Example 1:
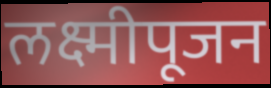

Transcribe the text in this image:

लक्ष्मीपूजन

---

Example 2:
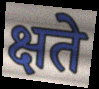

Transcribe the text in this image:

क्षते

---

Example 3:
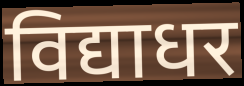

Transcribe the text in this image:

विद्याधर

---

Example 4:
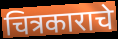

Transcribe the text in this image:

चित्रकाराचे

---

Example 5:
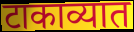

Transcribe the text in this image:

टाकाव्यात